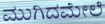
ಮುಗಿದಮೇಲೆ